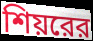
শিয়রের